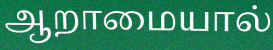
ஆறாமையால்